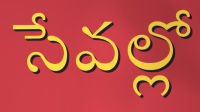
సేవల్లో